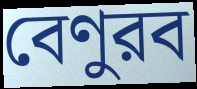
বেণুরব